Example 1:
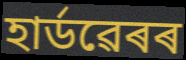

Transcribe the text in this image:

হাৰ্ডৱেৰৰ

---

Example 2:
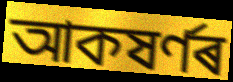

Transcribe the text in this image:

আকষৰ্ণৰ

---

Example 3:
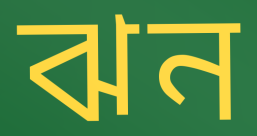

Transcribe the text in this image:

ঝন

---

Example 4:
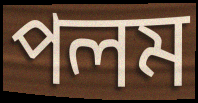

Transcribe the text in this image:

পলম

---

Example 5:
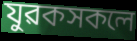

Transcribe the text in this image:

যুৱকসকলে